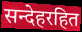
सन्देहरहित